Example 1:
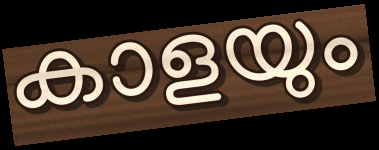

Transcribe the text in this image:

കാളയും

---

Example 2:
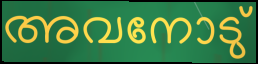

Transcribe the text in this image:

അവനോടു്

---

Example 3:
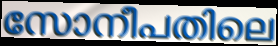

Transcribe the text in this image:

സോനീപതിലെ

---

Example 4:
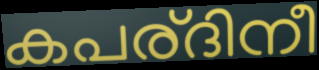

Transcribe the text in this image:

കപര്ദിനീ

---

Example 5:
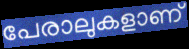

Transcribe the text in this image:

പേരാലുകളാണ്